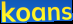
koans